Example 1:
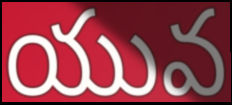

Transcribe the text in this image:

యువ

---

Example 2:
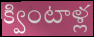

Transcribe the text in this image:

క్వింటాళ్ల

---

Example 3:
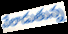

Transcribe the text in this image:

వేలాడుతున్న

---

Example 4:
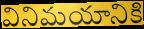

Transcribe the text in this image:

వినిమయానికి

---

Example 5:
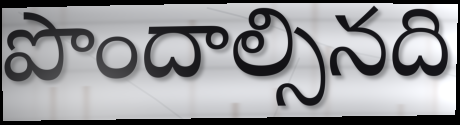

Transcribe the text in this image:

పొందాల్సినది